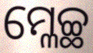
ମ୍ଳେଚ୍ଛ